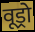
वूड्रो